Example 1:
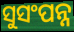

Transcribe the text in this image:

ସୁସଂପନ୍ନ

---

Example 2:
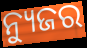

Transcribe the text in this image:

ନ୍ୟୁଜର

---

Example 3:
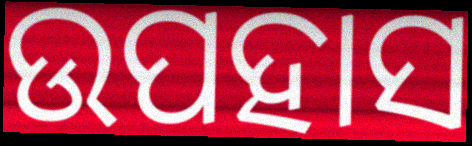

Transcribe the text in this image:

ଉପହାସ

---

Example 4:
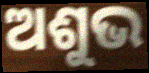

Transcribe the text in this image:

ଅଶୁଭ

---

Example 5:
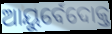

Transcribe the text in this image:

ଆୟୁର୍ବେଦୋକ୍ତ